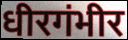
धीरगंभीर